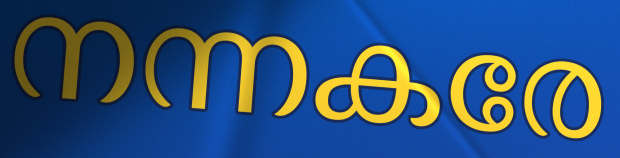
നന്നകരേ